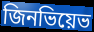
জিনভিয়েভ